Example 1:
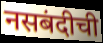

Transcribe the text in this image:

नसबंदीची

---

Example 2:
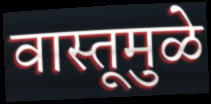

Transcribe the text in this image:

वास्तूमुळे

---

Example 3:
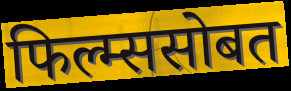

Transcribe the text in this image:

फिल्म्ससोबत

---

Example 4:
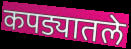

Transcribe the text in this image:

कपड्यातले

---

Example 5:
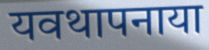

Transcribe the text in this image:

यवथापनाया